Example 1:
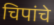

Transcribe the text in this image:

चिपांचे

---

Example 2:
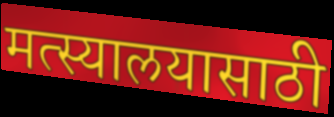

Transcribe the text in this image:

मत्स्यालयासाठी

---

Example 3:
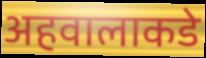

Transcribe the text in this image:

अहवालाकडे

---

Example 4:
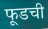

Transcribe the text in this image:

फूडची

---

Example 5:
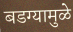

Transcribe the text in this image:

बडग्यामुळे